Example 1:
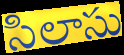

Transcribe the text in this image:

సిలాసు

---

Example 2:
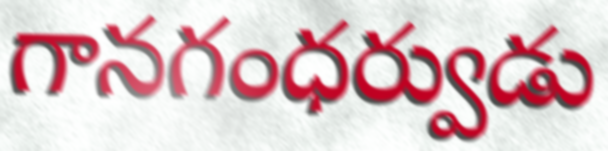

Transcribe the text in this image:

గానగంధర్వుడు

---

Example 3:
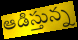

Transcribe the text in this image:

ఆడిస్తున్న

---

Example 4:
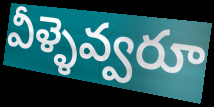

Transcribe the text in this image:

వీళ్ళెవ్వరూ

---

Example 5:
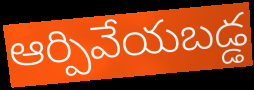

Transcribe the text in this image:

ఆర్పివేయబడ్డ